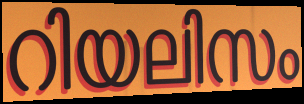
റിയലിസം